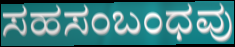
ಸಹಸಂಬಂಧವು